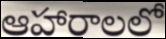
ఆహారాలలో